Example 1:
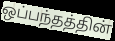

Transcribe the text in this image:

ஒப்பந்தத்தின்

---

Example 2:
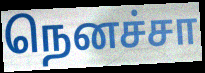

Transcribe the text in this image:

நெனச்சா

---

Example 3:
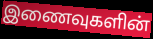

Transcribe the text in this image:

இணைவுகளின்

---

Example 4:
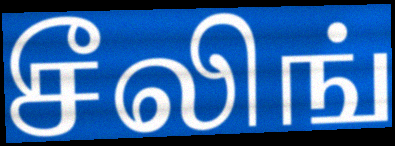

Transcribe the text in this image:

சீலிங்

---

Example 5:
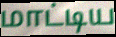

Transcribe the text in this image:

மாட்டிய